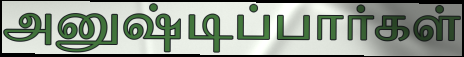
அனுஷ்டிப்பார்கள்